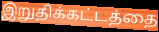
இறுதிக்கட்டத்தை